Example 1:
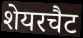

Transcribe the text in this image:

शेयरचैट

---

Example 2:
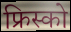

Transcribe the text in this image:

फ्रिस्को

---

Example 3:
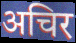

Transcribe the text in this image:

अचिर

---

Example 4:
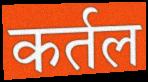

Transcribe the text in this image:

कर्तल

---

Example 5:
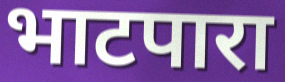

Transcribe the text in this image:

भाटपारा